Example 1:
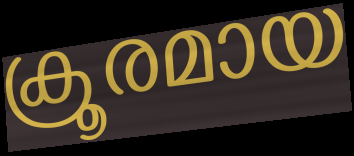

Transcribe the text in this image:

ക്രൂരമായ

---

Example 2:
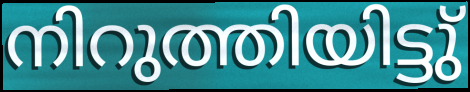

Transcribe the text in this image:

നിറുത്തിയിട്ടു്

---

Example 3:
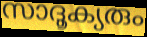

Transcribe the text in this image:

സാദൂക്യരും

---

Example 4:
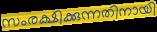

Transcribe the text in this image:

സംരക്ഷിക്കുന്നതിനായി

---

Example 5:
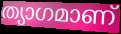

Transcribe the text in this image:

ത്യാഗമാണ്